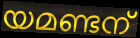
യമണ്ടന്